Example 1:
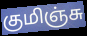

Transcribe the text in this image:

குமிஞ்சு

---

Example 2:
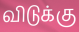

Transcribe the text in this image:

விடுக்கு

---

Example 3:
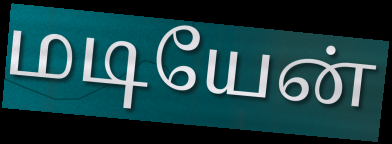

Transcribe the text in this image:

மடியேன்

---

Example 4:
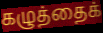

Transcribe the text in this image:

கழுத்தைக்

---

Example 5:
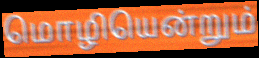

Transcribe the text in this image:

மொழியென்றும்